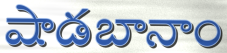
షాడబానాం